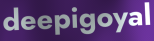
deepigoyal